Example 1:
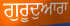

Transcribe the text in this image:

ਗੁਰੂਦੁਆਰਾ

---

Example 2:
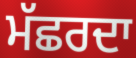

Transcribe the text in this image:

ਮੱਛਰਦਾ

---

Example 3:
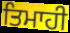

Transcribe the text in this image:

ਤਿਮਾਹੀ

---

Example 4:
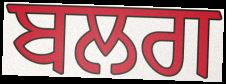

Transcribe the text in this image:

ਬਲਗ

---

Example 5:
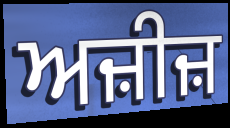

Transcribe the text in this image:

ਅਜ਼ੀਜ਼